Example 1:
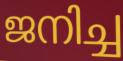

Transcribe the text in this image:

ജനിച്ച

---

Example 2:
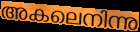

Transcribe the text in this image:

അകലെനിന്നു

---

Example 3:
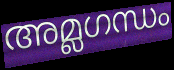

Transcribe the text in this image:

അമ്ലഗന്ധം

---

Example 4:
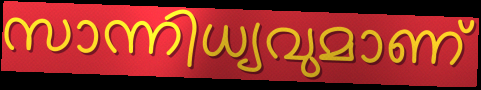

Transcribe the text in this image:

സാന്നിധ്യവുമാണ്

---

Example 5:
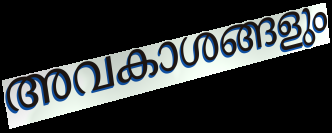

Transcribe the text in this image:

അവകാശങ്ങളും